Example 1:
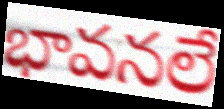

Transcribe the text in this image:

భావనలే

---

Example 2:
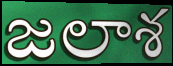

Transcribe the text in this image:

జలాశ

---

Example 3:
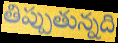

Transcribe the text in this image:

తిప్పుతున్నది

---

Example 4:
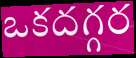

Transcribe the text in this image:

ఒకదగ్గర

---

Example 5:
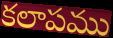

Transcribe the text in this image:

కలాపము